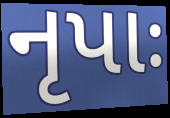
નૃપાઃ